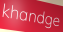
khandge